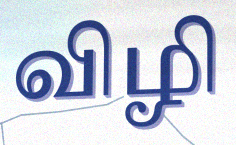
விழி